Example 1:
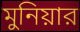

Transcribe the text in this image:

মুনিয়ার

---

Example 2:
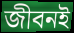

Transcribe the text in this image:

জীবনই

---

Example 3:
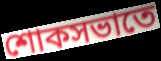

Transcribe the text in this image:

শোকসভাতে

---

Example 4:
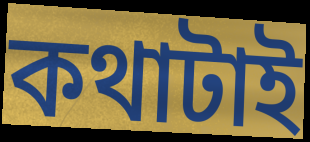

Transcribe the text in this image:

কথাটাই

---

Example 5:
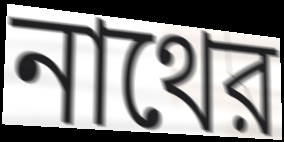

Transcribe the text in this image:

নাথের